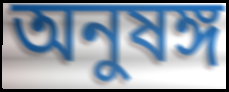
অনুষঙ্গ